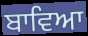
ਬਾਵਿਆ